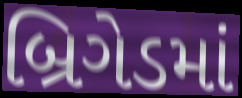
બ્રિગેડમાં